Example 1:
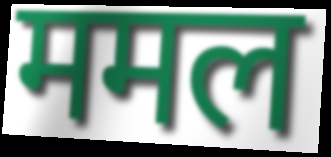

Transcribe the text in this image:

ममल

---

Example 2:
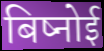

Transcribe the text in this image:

बिष्नोई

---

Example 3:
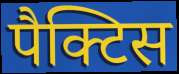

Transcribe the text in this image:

पैक्टिस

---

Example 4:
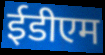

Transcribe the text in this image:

ईडीएम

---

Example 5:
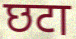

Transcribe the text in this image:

छटा